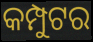
କମ୍ପୁଟର